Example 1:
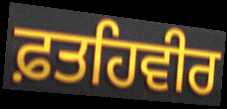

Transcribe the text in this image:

ਫ਼ਤਹਿਵੀਰ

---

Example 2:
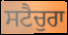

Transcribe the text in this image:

ਸਟੈਚੁਰਾ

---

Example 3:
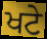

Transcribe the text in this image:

ਖਟੇ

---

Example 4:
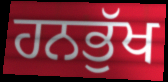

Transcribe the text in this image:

ਹਨਭੁੱਖ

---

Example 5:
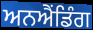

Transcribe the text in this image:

ਅਨਐਂਡਿੰਗ